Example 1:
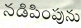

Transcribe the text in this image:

నడిపింపును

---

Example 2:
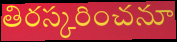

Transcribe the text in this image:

తిరస్కరించనూ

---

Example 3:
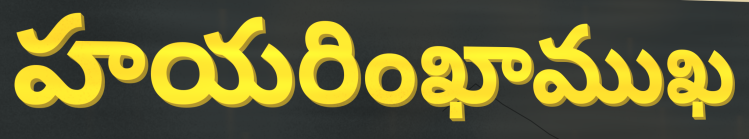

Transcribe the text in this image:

హయరింఖాముఖ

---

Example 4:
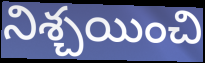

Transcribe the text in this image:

నిశ్చయించి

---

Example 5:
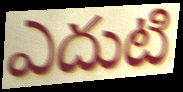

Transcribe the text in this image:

ఎదుటి